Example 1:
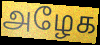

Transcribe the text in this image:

அழேக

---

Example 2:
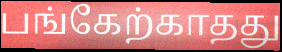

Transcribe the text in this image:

பங்கேற்காதது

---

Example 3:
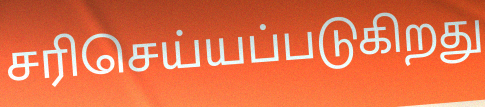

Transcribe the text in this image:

சரிசெய்யப்படுகிறது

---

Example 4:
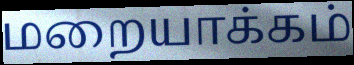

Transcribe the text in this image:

மறையாக்கம்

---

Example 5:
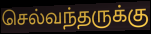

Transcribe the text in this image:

செல்வந்தருக்கு